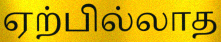
ஏற்பில்லாத